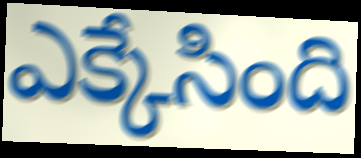
ఎక్కేసింది